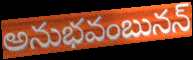
అనుభవంబునన్